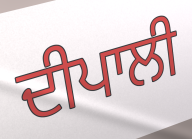
ਦੀਪਾਲੀ